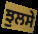
ਝੁਲਸੇ